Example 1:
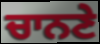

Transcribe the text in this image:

ਚਾਨਣੇ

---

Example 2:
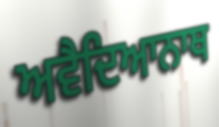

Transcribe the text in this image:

ਅਵੈਦਿਆਨਾਥ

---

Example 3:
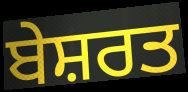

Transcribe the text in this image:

ਬੇਸ਼ਰਤ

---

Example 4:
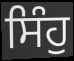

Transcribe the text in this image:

ਸਿੰਹੁ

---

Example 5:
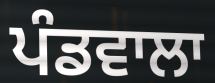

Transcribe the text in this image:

ਪੰਡਵਾਲਾ